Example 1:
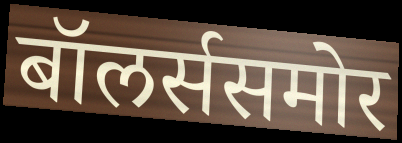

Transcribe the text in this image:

बॉलर्ससमोर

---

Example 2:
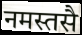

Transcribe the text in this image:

नमस्तसै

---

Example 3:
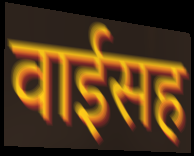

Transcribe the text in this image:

वाईसह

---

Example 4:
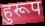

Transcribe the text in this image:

हुरूप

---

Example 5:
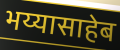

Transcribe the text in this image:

भय्यासाहेब